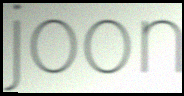
joon